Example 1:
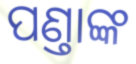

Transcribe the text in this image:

ପଣ୍ତାଙ୍କ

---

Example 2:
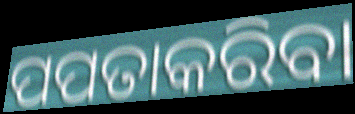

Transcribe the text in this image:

ପପତାକରିବା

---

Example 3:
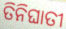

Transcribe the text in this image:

ତିନିଘାତୀ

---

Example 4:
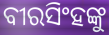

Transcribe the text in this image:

ବୀରସିଂହଙ୍କୁ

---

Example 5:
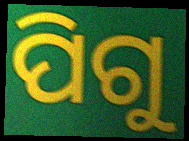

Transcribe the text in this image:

ପିଗୁ